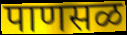
पाणसळ